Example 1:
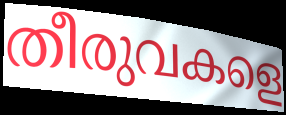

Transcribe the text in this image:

തീരുവകളെ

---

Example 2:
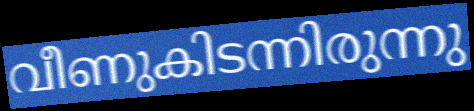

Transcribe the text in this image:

വീണുകിടന്നിരുന്നു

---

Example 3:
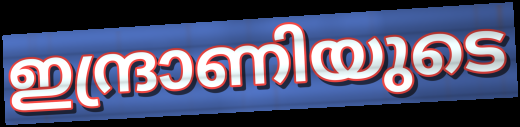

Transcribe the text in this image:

ഇന്ദ്രാണിയുടെ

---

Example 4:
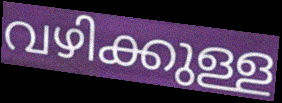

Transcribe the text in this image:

വഴിക്കുള്ള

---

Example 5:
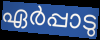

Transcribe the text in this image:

ഏർപ്പാടു